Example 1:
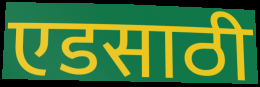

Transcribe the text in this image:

एडसाठी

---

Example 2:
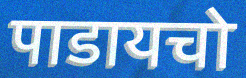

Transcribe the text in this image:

पाडायचो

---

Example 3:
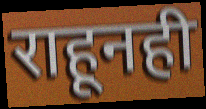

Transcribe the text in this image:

राहूनही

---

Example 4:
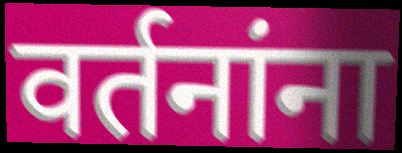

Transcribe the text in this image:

वर्तनांना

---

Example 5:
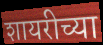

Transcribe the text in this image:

शायरीच्या